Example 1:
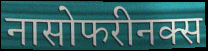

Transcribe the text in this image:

नासोफरीनक्स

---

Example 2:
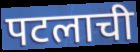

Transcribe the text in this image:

पटलाची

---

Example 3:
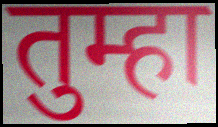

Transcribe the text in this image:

तुम्हा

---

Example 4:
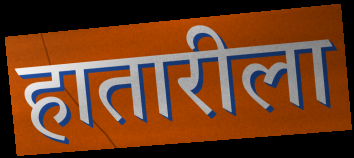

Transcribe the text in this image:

हातारीला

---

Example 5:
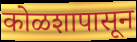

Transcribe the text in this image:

कोळशापासून